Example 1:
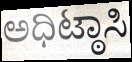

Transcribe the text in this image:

ಅಧಿಟ್ಠಾಸಿ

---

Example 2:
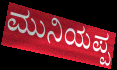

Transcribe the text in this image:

ಮುನಿಯಪ್ಪ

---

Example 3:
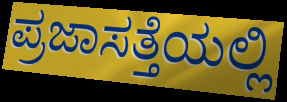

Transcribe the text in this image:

ಪ್ರಜಾಸತ್ತೆಯಲ್ಲಿ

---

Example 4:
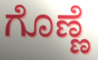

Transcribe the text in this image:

ಗೊಣ್ಣೆ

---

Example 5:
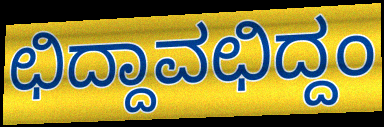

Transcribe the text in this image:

ಛಿದ್ದಾವಛಿದ್ದಂ